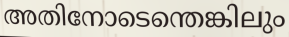
അതിനോടെന്തെങ്കിലും